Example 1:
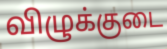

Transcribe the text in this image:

விழுக்குடை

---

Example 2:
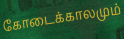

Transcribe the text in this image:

கோடைக்காலமும்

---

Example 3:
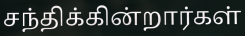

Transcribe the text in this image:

சந்திக்கின்றார்கள்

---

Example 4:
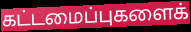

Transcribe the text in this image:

கட்டமைப்புகளைக்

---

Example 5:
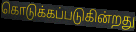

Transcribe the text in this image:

கொடுக்கப்படுகின்றது